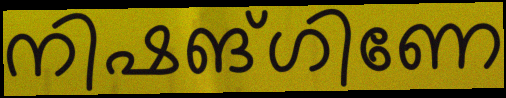
നിഷങ്ഗിണേ